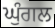
ਘੁੰਗਲ